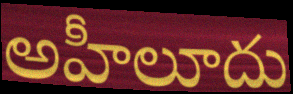
అహీలూదు